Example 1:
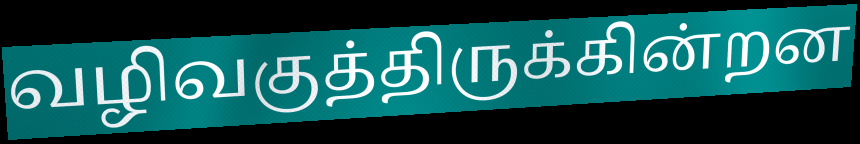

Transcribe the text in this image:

வழிவகுத்திருக்கின்றன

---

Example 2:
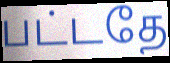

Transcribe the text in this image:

பட்டதே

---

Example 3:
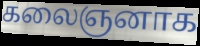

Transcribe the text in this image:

கலைஞனாக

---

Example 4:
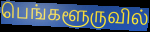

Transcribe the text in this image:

பெங்களூருவில்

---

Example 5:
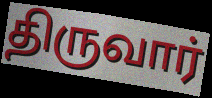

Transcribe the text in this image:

திருவார்